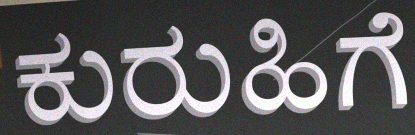
ಕುರುಹಿಗೆ